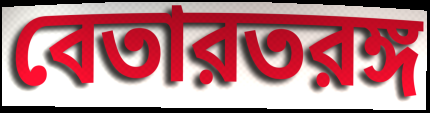
বেতারতরঙ্গ